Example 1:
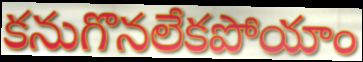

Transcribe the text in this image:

కనుగొనలేకపోయాం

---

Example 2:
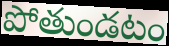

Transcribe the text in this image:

పోతుండటం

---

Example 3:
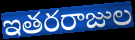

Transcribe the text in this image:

ఇతరరాజుల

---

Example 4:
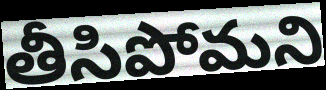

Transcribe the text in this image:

తీసిపోమని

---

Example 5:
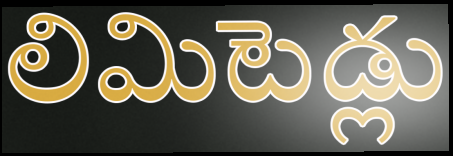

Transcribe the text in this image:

లిమిటెడ్లు